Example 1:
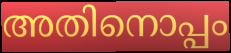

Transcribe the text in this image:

അതിനൊപ്പം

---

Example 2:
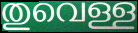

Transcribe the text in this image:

തുവെള്ള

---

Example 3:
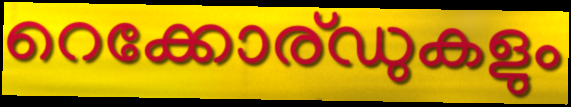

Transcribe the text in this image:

റെക്കോര്ഡുകളും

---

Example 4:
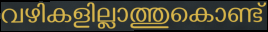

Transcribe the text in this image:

വഴികളില്ലാത്തുകൊണ്ട്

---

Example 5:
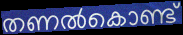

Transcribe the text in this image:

തണൽകൊണ്ട്